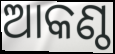
ଆକଣ୍ଠ